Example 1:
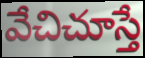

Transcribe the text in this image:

వేచిచూస్తే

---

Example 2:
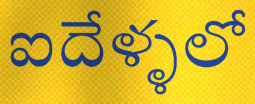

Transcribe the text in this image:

ఐదేళ్ళలో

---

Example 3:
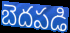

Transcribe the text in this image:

బెదపడి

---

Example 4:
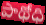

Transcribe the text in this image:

పాథోధి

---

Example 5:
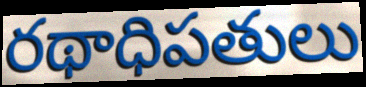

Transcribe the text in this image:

రథాధిపతులు